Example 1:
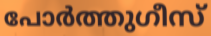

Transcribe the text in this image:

പോർത്തുഗീസ്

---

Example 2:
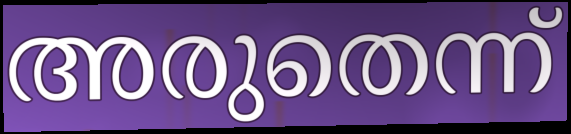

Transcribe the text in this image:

അരുതെന്ന്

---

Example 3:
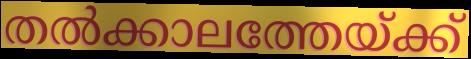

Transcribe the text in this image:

തൽക്കാലത്തേയ്ക്ക്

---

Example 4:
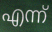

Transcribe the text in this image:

എന്ന്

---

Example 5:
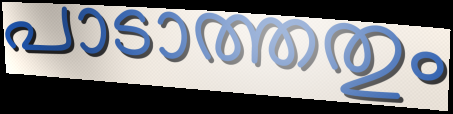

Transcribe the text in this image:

പാടാത്തതും